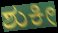
ಶುಕೀ